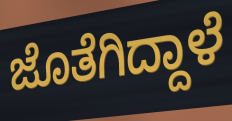
ಜೊತೆಗಿದ್ದಾಳೆ